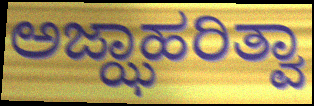
ಅಜ್ಝಾಹರಿತ್ವಾ